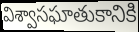
విశ్వాసఘాతుకానికి